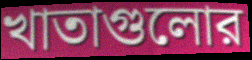
খাতাগুলোর